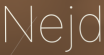
Nejd